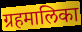
ग्रहमालिका